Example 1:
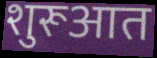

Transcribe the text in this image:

शुरूआत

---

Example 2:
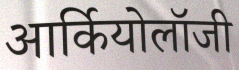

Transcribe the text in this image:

आर्कियोलॉजी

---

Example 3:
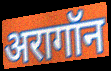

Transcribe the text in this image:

अरागॉन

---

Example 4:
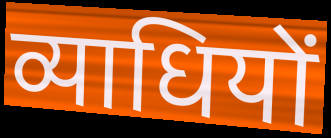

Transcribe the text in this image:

व्याधियों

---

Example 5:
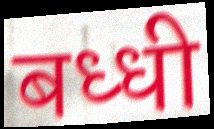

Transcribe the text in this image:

बध्धी